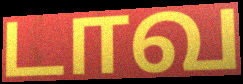
டாவ